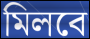
মিলবে